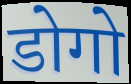
डोगो